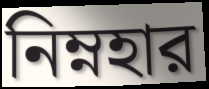
নিম্নহার